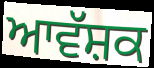
ਆਵੱਸ਼ਕ